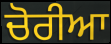
ਚੋਰੀਆ